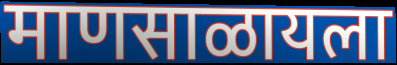
माणसाळायला